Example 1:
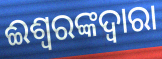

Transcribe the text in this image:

ଈଶ୍ୱରଙ୍କଦ୍ୱାରା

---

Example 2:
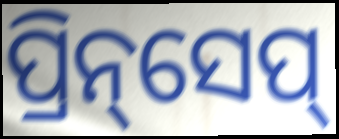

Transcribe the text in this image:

ପ୍ରିନ୍‌ସେପ୍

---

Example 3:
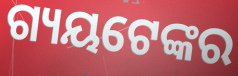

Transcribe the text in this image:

ଗ୍ୟୟଟେଙ୍କର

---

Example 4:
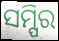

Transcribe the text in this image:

ସମ୍ପିର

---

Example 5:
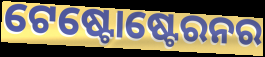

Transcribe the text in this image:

ଟେଷ୍ଟୋଷ୍ଟେରନର